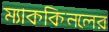
ম্যাককিনলের